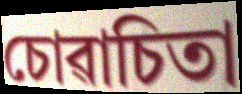
চোৱাচিতা